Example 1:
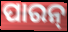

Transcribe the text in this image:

ପାରନ୍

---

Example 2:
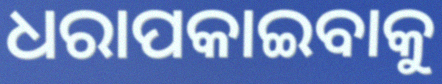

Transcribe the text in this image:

ଧରାପକାଇବାକୁ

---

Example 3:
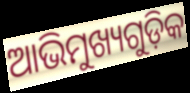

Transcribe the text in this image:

ଆଭିମୁଖ୍ୟଗୁଡ଼ିକ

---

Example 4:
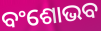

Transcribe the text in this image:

ବଂଶୋଭବ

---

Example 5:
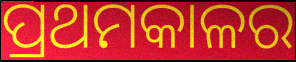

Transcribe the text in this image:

ପ୍ରଥମକାଳର